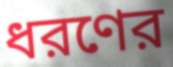
ধরণের